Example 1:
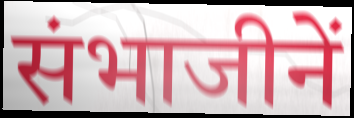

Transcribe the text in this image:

संभाजीनें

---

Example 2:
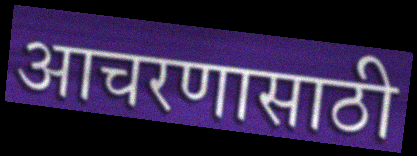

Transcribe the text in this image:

आचरणासाठी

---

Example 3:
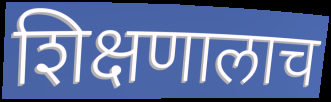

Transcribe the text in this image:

शिक्षणालाच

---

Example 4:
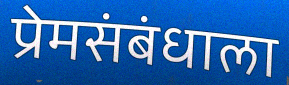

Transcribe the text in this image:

प्रेमसंबंधाला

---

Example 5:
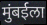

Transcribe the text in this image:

मुंबईला